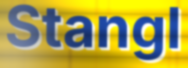
Stangl